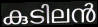
കുടിലൻ